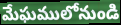
మేఘములోనుండి